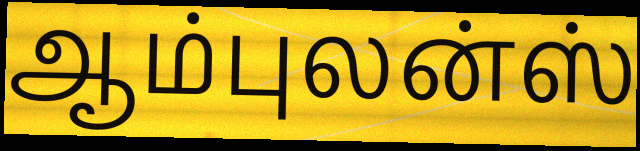
ஆம்புலன்ஸ்